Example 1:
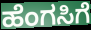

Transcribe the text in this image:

ಹೆಂಗಸಿಗೆ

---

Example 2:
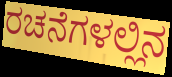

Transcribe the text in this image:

ರಚನೆಗಳಲ್ಲಿನ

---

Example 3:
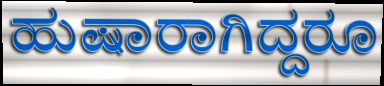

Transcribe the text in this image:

ಹುಷಾರಾಗಿದ್ದರೂ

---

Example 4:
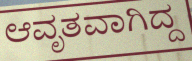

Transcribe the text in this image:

ಆವೃತವಾಗಿದ್ದ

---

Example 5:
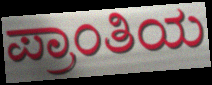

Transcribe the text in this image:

ಪ್ರಾಂತಿಯ